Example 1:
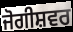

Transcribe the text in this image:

ਜੋਗੀਸ਼ਵਰ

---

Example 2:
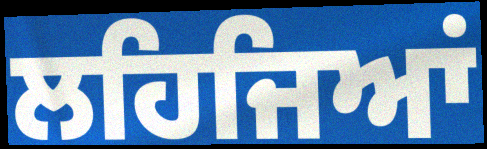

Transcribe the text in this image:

ਲਹਿਜਿਆਂ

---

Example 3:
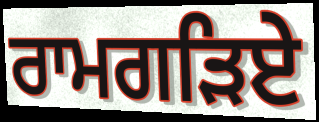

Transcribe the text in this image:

ਰਾਮਗੜਿਏ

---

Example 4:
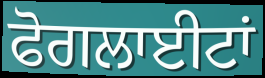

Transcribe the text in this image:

ਫੋਗਲਾਈਟਾਂ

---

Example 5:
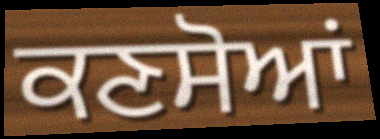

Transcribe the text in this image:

ਕਣਸੋਆਂ